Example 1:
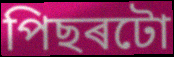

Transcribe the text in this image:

পিছৰটো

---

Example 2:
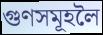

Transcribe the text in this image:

গুণসমূহলৈ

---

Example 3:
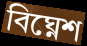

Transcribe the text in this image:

বিঘ্নেশ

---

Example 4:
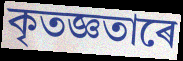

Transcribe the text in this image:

কৃতজ্ঞতাৰে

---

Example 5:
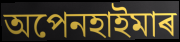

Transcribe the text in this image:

অপেনহাইমাৰ